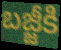
బజ్జీకి